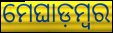
ମେଘାଡ଼ମ୍ବର